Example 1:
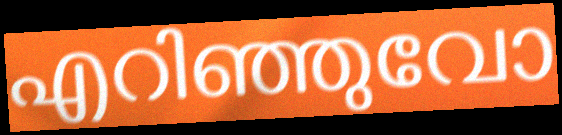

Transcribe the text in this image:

എറിഞ്ഞുവോ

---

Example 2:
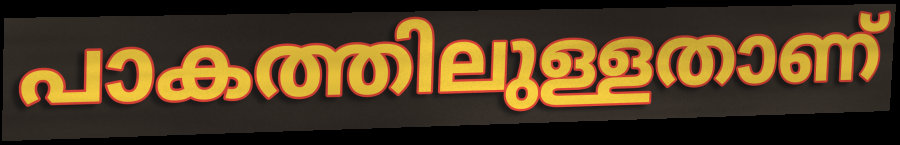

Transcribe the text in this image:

പാകത്തിലുള്ളതാണ്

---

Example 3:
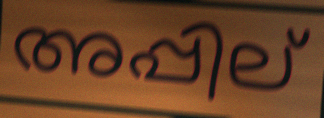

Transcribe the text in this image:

അപ്പില്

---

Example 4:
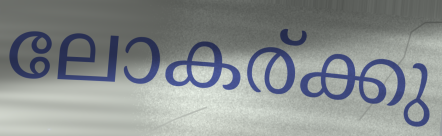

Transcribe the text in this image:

ലോകര്ക്കു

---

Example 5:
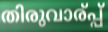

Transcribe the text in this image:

തിരുവാര്പ്പ്